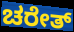
ಚರೇತ್